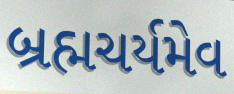
બ્રહ્મચર્યમેવ